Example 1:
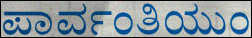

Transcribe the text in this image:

ಪಾರ್ವಂತಿಯುಂ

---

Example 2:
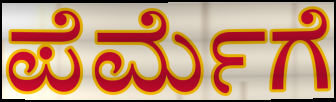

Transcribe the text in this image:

ಪೆರ್ಮೆಗೆ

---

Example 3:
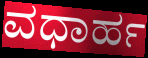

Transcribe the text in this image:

ವಧಾರ್ಹ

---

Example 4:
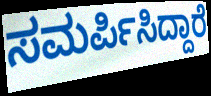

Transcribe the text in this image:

ಸಮರ್ಪಿಸಿದ್ದಾರೆ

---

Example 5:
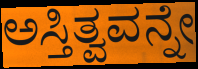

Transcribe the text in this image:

ಅಸ್ತಿತ್ವವನ್ನೇ